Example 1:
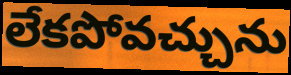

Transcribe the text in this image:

లేకపోవచ్చును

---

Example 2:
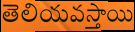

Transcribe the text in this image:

తెలియవస్తాయి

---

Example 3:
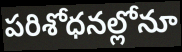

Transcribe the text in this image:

పరిశోధనల్లోనూ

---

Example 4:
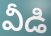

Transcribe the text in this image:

వీడి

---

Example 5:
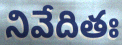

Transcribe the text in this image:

నివేదితః